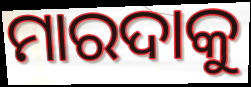
ମାରଦାକୁ